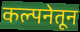
कल्पनेतून